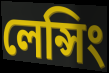
লেন্সিং